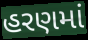
હરણમાં